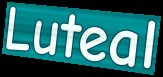
Luteal